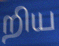
றிய